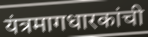
यंत्रमागधारकांची